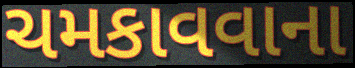
ચમકાવવાના